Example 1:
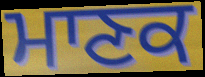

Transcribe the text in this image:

ਮਾਣਕ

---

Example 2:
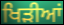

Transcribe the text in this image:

ਖਿੜੀਆਂ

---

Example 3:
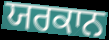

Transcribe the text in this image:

ਯਰਕਾਨ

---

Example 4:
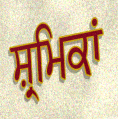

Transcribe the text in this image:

ਸ਼੍ਰਮਿਕਾਂ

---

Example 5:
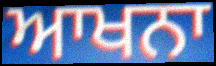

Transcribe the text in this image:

ਆਖਨਾ